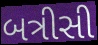
બત્રીસી